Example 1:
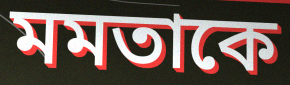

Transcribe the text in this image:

মমতাকে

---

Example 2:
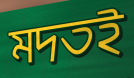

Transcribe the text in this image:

মদতই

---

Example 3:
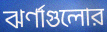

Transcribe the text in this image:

ঝর্ণাগুলোর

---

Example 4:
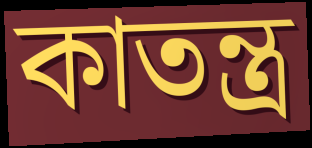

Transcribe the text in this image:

কাতন্ত্র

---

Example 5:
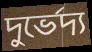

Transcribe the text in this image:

দুর্ভেদ্য